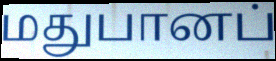
மதுபானப்